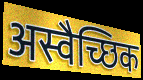
अस्वैच्छिक